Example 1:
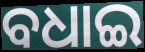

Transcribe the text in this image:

ବଧାଇ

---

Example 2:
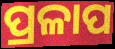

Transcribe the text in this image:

ପ୍ରଳାପ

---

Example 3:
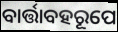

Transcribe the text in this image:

ବାର୍ତ୍ତାବହରୂପେ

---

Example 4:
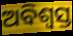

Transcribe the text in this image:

ଅବିଶ୍ୱସ୍ତ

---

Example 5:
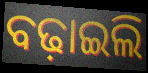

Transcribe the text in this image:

ବଢ଼ାଇଲି